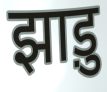
झाड़ु